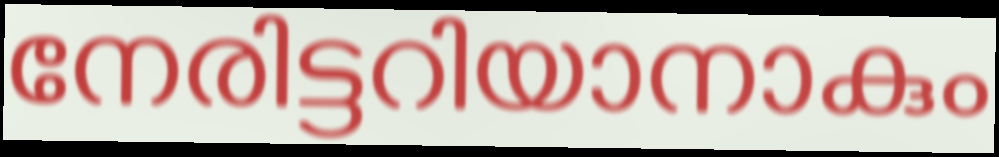
നേരിട്ടറിയാനാകും